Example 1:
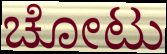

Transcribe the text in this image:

ಚೋಟು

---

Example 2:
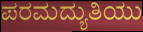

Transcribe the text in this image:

ಪರಮದ್ಯುತಿಯು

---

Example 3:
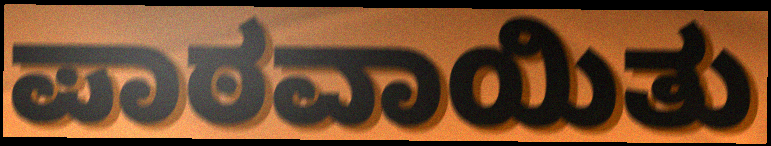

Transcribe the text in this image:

ಪಾಠವಾಯಿತು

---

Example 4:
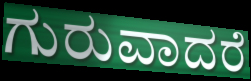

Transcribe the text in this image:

ಗುರುವಾದರೆ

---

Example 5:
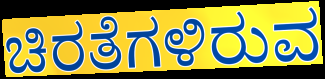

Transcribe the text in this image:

ಚಿರತೆಗಳಿರುವ